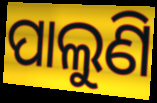
ପାଲୁଣି